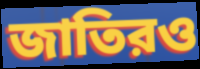
জাতিরও